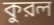
কুরল